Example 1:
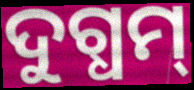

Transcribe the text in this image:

ଦୁଗ୍ଧମ୍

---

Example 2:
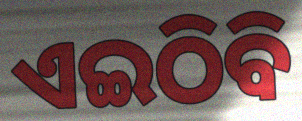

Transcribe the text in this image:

ଏଇଠିବି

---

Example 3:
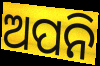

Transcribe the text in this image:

ଅପନି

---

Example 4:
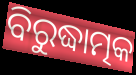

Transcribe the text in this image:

ବିରୁଦ୍ଧାତ୍ମକ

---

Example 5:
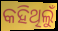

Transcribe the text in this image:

କହିଥିଲୁଁ